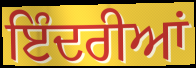
ਇੰਦਰੀਆਂ